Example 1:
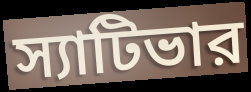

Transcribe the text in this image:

স্যাটিভার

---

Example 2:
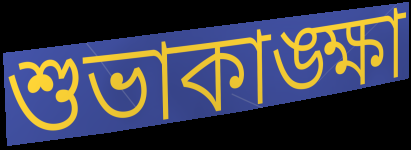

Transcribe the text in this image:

শুভাকাঙ্ক্ষা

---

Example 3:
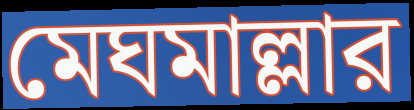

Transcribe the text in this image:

মেঘমাল্লার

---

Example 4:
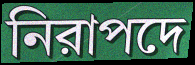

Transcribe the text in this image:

নিরাপদে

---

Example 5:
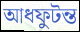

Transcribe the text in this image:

আধফুটন্ত